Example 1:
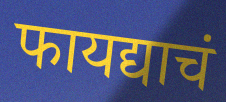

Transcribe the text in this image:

फायद्याचं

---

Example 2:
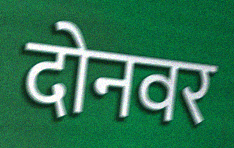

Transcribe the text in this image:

दोनवर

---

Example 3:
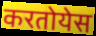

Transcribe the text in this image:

करतोयेस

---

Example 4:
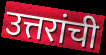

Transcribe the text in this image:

उत्तरांची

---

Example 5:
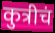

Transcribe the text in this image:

कुत्रीचं